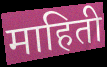
माहिती